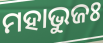
ମହାଭୁଜଃ